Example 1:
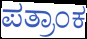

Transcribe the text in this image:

ಪತ್ರಾಂಕ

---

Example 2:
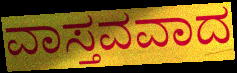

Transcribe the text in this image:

ವಾಸ್ತವವಾದ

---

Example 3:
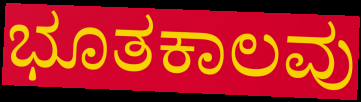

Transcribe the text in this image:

ಭೂತಕಾಲವು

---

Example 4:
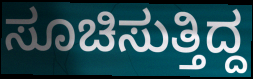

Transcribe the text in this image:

ಸೂಚಿಸುತ್ತಿದ್ದ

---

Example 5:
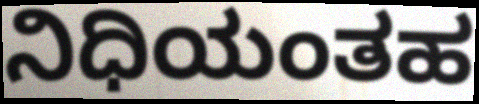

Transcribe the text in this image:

ನಿಧಿಯಂತಹ